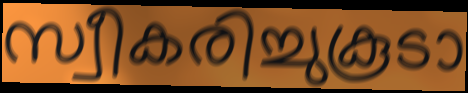
സ്വീകരിച്ചുകൂടാ